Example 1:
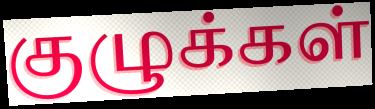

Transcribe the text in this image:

குழுக்கள்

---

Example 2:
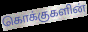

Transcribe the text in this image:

கொக்குகளின்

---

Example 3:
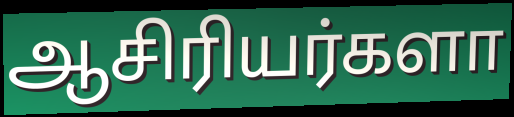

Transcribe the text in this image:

ஆசிரியர்களா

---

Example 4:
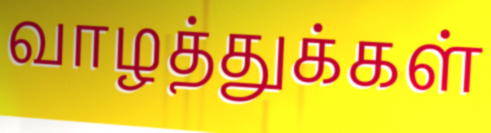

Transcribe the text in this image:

வாழத்துக்கள்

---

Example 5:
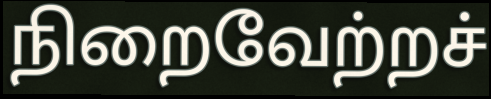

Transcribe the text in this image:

நிறைவேற்றச்